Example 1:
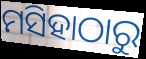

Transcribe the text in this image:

ମସିହାଠାରୁ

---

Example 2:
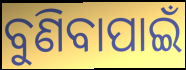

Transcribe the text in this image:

ବୁଣିବାପାଇଁ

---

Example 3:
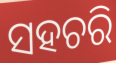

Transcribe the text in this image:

ସହଚରି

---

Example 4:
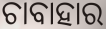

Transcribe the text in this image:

ଚାବାହାର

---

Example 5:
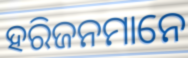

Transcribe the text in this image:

ହରିଜନମାନେ